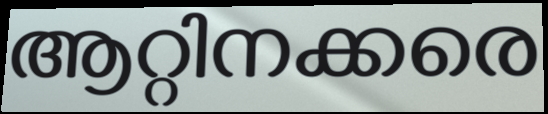
ആറ്റിനക്കരെ